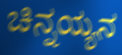
ಚಿನ್ನಯ್ಯನ